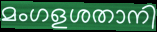
മംഗളശതാനി